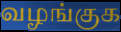
வழங்குக